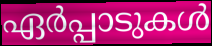
ഏർപ്പാടുകൾ